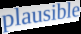
plausible